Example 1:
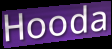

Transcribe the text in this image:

Hooda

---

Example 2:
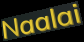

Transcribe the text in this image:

Naalai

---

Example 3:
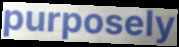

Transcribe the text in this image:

purposely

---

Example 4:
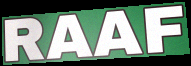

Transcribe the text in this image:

RAAF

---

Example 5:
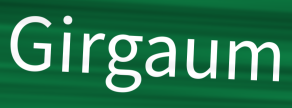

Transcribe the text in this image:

Girgaum